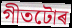
গীতটোৰ